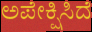
ಅಪೇಕ್ಷಿಸಿದೆ